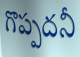
గొప్పదనీ